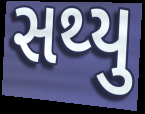
સથ્યુ